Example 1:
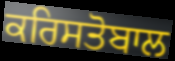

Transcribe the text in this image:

ਕਰਿਸਤੋਬਾਲ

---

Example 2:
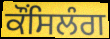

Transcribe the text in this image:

ਕੌਂਸਿਲੰਗ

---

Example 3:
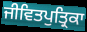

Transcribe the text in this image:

ਜੀਵਿਤਪੁਤ੍ਰਿਕਾ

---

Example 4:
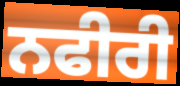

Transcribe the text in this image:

ਨਫੀਰੀ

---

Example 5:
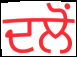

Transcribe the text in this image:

ਦਲੋਂ